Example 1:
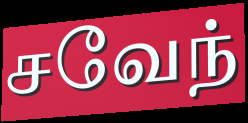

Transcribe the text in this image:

சவேந்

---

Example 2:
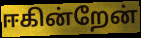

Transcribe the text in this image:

ஈகின்றேன்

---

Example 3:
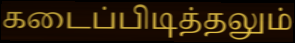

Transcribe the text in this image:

கடைப்பிடித்தலும்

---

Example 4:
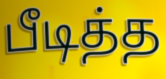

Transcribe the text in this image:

பீடித்த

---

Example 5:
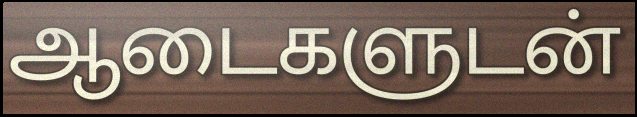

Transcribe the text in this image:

ஆடைகளுடன்